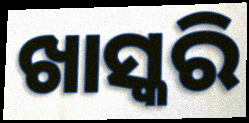
ଖାସ୍କରି